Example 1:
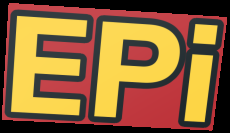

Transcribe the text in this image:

EPi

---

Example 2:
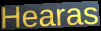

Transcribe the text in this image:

Hearas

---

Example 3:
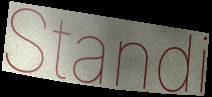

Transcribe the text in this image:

Standi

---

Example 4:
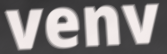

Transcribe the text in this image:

venv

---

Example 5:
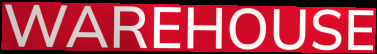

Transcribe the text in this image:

WAREHOUSE